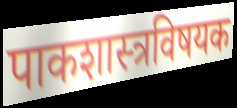
पाकशास्त्रविषयक